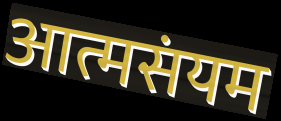
आत्मसंयम